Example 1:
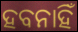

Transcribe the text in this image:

ହବନାହିଁ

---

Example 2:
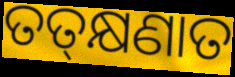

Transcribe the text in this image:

ତତ୍‌କ୍ଷଣାତ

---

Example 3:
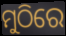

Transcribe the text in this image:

ମୁଠିରେ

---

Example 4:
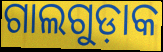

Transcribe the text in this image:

ଗାଲଗୁଡ଼ାକ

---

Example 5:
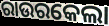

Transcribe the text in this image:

ରାଉରକେଲା